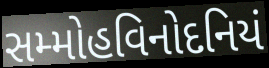
સમ્મોહવિનોદનિયં